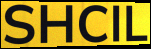
SHCIL